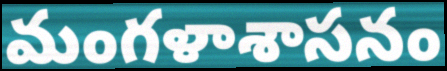
మంగళాశాసనం